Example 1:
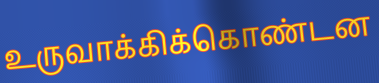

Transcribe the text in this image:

உருவாக்கிக்கொண்டன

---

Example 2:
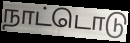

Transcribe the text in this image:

நாட்டொடு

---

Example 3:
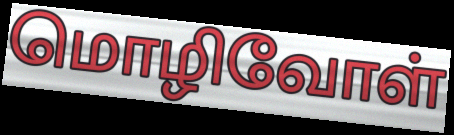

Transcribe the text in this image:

மொழிவோள்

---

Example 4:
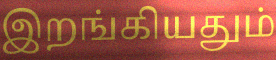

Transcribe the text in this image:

இறங்கியதும்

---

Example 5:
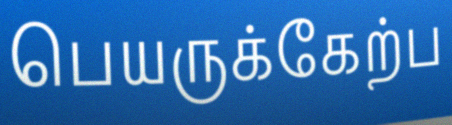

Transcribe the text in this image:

பெயருக்கேற்ப